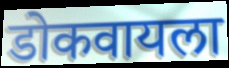
डोकवायला